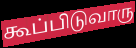
கூப்பிடுவாரு